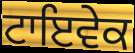
ਟਾਇਵੇਕ